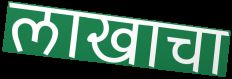
लाखाचा